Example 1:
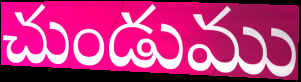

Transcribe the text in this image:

చుండుము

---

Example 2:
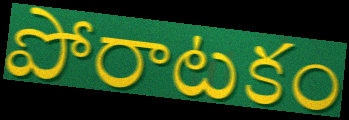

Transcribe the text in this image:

పోరాటకం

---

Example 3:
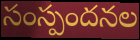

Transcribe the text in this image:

సంస్పందనల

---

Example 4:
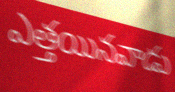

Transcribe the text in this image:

ఎత్తయినవాడు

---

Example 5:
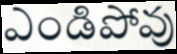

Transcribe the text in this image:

ఎండిపోవు